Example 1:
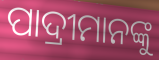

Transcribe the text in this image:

ପାଦ୍ରୀମାନଙ୍କୁ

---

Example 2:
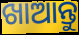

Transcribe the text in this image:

ଖାଆନ୍ତୁ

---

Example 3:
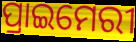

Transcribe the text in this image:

ପ୍ରାଇମେରୀ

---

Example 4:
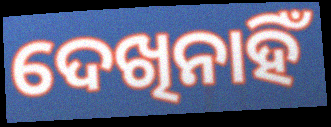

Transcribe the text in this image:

ଦେଖିନାହିଁ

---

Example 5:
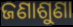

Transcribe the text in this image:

ଜଣାଶୁଣା